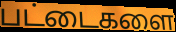
பட்டைகளை